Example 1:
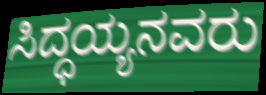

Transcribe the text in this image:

ಸಿದ್ಧಯ್ಯನವರು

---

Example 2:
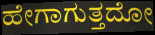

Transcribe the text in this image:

ಹೇಗಾಗುತ್ತದೋ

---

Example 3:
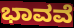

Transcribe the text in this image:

ಭಾವವೆ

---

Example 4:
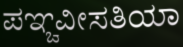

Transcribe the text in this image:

ಪಞ್ಚವೀಸತಿಯಾ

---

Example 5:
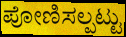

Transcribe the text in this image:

ಪೋಣಿಸಲ್ಪಟ್ಟು